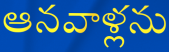
ఆనవాళ్లను